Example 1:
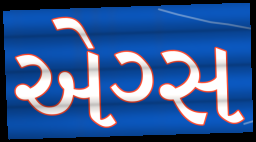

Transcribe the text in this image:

એગ્સ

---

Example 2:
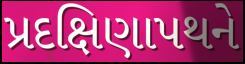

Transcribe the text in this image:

પ્રદક્ષિણાપથને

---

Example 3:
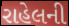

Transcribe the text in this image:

રાહેલની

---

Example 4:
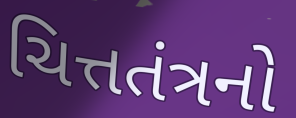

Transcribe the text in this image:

ચિત્તતંત્રનો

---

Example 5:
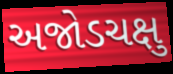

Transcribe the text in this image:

અજોડચક્ષુ